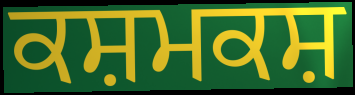
ਕਸ਼ਮਕਸ਼